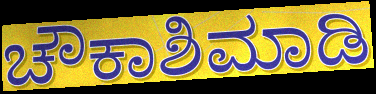
ಚೌಕಾಶಿಮಾಡಿ